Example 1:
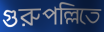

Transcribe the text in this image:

গুরুপল্লিতে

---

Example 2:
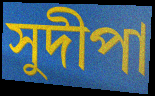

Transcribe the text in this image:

সুদীপা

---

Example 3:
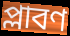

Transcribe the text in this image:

প্লাবণ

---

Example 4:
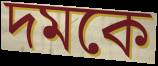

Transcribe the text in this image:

দমকে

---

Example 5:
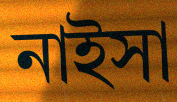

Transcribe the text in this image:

নাইসা